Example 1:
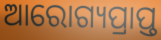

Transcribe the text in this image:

ଆରୋଗ୍ୟପ୍ରାପ୍ତ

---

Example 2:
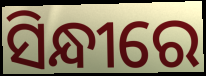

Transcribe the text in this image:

ସିନ୍ଧୀରେ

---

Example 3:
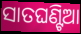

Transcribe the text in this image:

ସାତଘଣ୍ଟିଆ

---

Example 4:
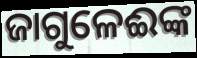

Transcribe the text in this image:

ଜାଗୁଳେଈଙ୍କ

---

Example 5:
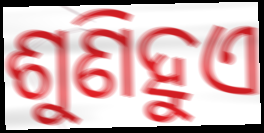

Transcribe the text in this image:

ଶୁଣିହୁଏ